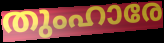
തുംഹാരേ